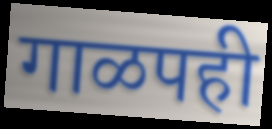
गाळपही